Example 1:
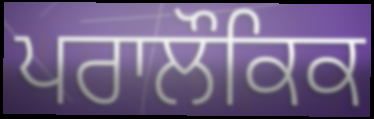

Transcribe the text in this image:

ਪਰਾਲੌਕਿਕ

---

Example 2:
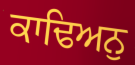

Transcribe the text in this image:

ਕਾਢਿਅਨੁ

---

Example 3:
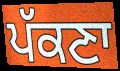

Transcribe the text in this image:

ਪੱਕਣਾ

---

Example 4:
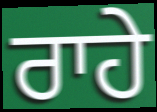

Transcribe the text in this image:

ਰਾਹੇ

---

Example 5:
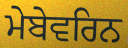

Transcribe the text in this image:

ਮੇਬੇਵਰਿਨ